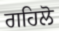
ਗਹਿਲੋ